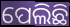
ପେଲିଛି